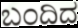
ಬಂದಿದ